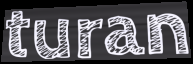
turan